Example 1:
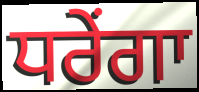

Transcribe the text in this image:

ਧਰੇਂਗਾ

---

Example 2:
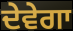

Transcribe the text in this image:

ਦੇਵੇਗਾ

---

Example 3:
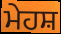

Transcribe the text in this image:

ਮੇਹਸ਼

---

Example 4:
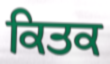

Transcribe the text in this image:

ਕਿਤਕ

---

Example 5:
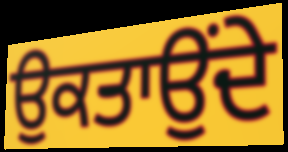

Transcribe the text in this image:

ਉਕਤਾਉਂਦੇ